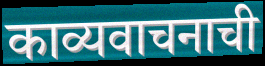
काव्यवाचनाची